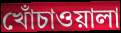
খোঁচাওয়ালা